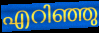
എറിഞ്ഞു